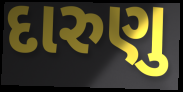
દારુણુ